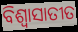
ବିଶ୍ୱାସାତୀତ